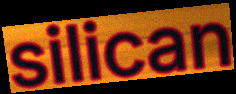
silican